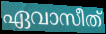
ഏവാസീത്